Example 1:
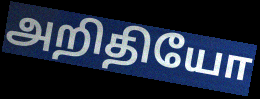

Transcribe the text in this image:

அறிதியோ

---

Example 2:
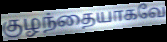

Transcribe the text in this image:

குழந்தையாகவே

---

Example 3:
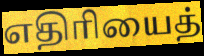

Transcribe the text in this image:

எதிரியைத்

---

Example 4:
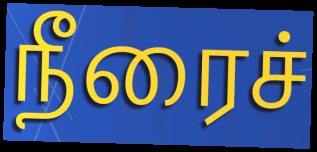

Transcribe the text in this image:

நீரைச்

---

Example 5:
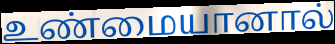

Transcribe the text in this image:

உண்மையானால்